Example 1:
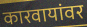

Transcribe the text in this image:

कारवायांवर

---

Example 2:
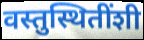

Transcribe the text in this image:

वस्तुस्थितींशी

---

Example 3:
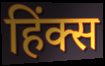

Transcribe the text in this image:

हिंक्स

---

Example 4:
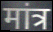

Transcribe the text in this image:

मांत्र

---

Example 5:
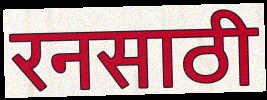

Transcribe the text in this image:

रनसाठी